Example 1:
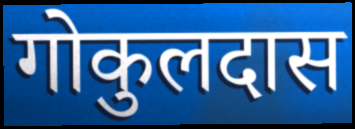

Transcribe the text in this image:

गोकुलदास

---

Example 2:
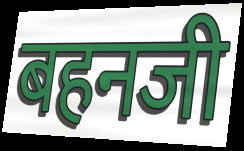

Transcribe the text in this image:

बहनजी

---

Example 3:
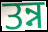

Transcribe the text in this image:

उन्न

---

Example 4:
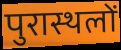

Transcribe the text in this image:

पुरास्थलों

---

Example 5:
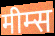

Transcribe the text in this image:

मीम्स